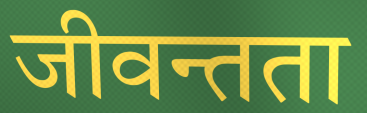
जीवन्तता